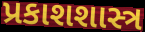
પ્રકાશશાસ્ત્ર